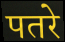
पतरे